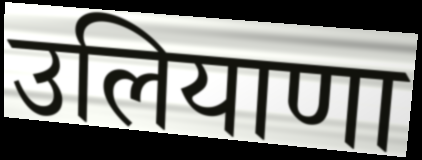
उलियाणा